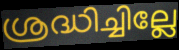
ശ്രദ്ധിച്ചില്ലേ